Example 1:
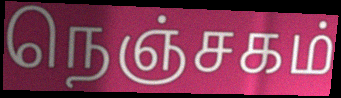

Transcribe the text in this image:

நெஞ்சகம்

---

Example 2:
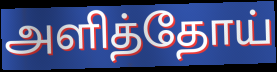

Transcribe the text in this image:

அளித்தோய்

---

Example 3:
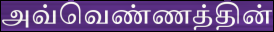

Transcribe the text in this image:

அவ்வெண்ணத்தின்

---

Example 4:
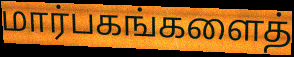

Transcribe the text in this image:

மார்பகங்களைத்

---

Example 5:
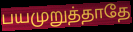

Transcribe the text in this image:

பயமுறுத்தாதே